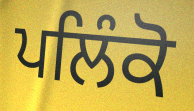
ਪਲਿੰਕੋ